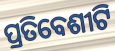
ପ୍ରତିବେଶୀଟି